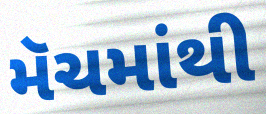
મૅચમાંથી